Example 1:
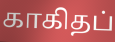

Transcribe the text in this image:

காகிதப்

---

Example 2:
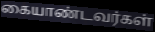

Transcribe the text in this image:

கையாண்டவர்கள்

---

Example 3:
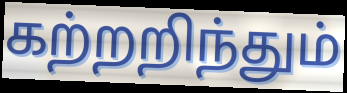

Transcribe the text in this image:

கற்றறிந்தும்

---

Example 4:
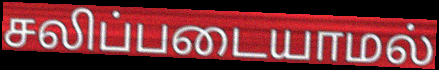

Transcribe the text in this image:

சலிப்படையாமல்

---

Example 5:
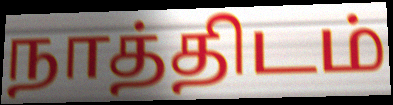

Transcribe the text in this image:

நாத்திடம்